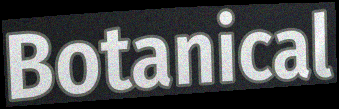
Botanical